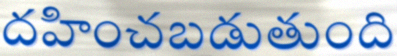
దహించబడుతుంది